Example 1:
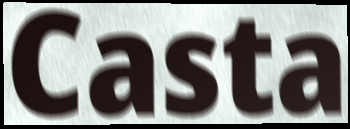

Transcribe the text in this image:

Casta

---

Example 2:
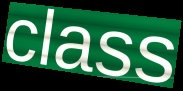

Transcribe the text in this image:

class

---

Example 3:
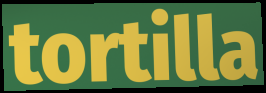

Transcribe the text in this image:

tortilla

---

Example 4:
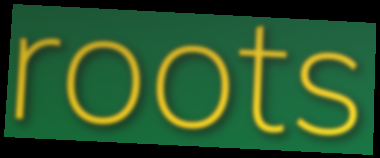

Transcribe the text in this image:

roots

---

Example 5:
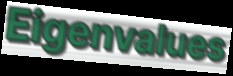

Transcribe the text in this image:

Eigenvalues